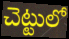
చెట్టులో